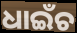
ଧାଇଁଚ